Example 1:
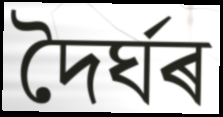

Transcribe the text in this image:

দৈৰ্ঘৰ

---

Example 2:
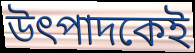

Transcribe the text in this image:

উৎপাদকেই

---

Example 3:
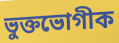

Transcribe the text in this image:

ভুক্তভোগীক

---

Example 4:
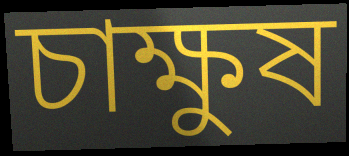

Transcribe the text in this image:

চাক্ষুষ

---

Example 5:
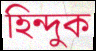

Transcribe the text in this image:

হিন্দুক